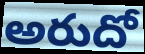
అరుదో